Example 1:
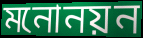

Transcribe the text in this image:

মনোনয়ন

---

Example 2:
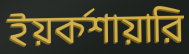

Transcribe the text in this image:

ইয়র্কশায়ারি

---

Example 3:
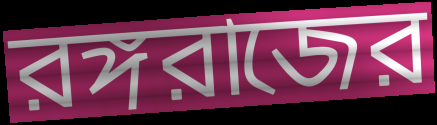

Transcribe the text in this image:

রঙ্গরাজের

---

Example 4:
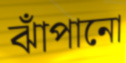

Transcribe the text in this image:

ঝাঁপানো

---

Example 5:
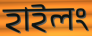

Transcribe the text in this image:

হাইলং